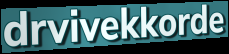
drvivekkorde